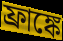
ফ্রাঙ্কে